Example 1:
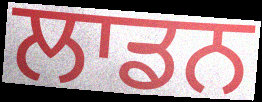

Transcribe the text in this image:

ਲਾਡਨ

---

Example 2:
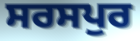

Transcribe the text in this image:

ਸਰਸਪੁਰ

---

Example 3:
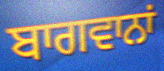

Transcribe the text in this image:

ਬਾਗਵਾਨਾਂ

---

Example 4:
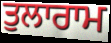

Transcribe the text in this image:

ਤੁਲਾਰਾਮ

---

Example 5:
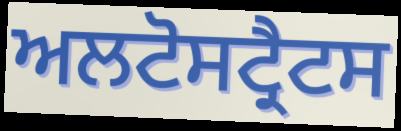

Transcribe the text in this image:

ਅਲਟੋਸਟ੍ਰੈਟਸ